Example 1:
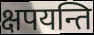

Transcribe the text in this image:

क्षपयन्ति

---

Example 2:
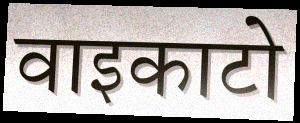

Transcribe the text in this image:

वाइकाटो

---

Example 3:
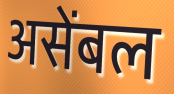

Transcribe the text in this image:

असेंबल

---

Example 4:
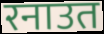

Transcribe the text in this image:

रनाउत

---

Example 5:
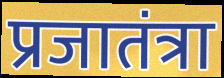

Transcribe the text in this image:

प्रजातंत्रा